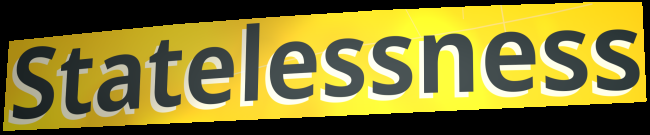
Statelessness